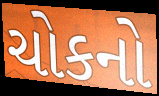
ચોકનો